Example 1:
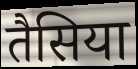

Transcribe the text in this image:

तैसिया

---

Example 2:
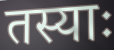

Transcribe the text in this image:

तस्याः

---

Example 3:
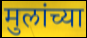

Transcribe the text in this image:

मुलांच्या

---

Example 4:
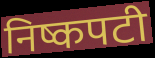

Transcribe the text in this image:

निष्कपटी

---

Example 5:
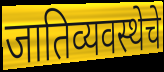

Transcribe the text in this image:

जातिव्यवस्थेचे